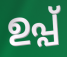
ഉപ്പ്